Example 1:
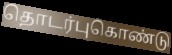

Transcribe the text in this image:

தொடர்புகொண்டு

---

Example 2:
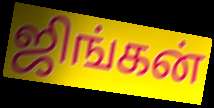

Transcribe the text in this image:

ஜிங்கன்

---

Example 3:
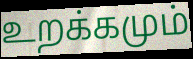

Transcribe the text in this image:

உறக்கமும்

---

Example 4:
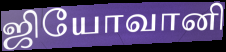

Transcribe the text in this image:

ஜியோவானி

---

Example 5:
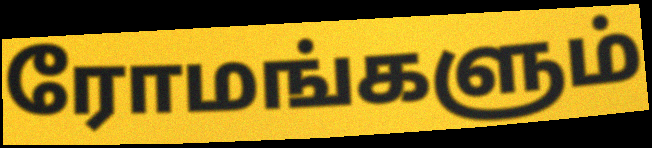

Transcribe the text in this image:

ரோமங்களும்